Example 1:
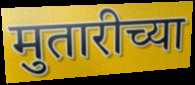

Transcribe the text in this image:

मुतारीच्या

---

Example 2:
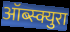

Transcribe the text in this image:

ऑब्स्क्युरा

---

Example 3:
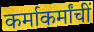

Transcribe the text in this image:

कर्माकर्मांचीं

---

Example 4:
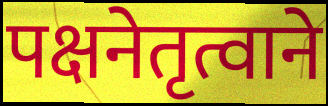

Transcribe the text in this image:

पक्षनेतृत्वाने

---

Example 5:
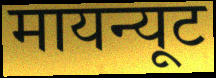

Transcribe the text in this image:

मायन्यूट